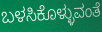
ಬಳಸಿಕೊಳ್ಳುವಂತೆ